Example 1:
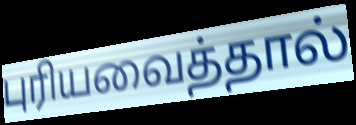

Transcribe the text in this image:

புரியவைத்தால்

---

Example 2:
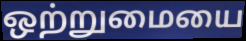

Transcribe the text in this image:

ஒற்றுமையை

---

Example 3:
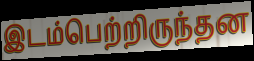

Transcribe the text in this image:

இடம்பெற்றிருந்தன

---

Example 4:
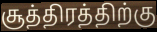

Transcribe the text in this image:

சூத்திரத்திற்கு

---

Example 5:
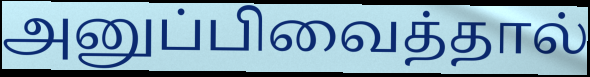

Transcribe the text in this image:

அனுப்பிவைத்தால்